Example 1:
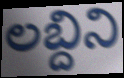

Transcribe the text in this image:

లబ్దిని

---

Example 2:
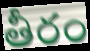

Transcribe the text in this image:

తీరం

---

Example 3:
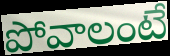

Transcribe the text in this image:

పోవాలంటే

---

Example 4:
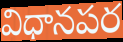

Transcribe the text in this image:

విధానపర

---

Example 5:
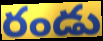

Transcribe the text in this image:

రండు